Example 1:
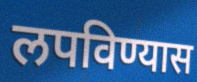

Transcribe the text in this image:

लपविण्यास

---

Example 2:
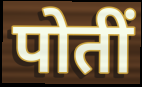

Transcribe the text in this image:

पोतीं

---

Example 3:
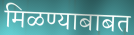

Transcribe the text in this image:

मिळण्याबाबत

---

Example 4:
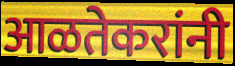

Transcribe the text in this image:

आळतेकरांनी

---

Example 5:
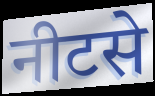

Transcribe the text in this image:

नीटसे